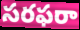
సరఫరా